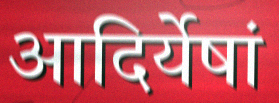
आदिर्येषां